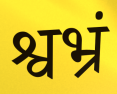
श्वभ्रं